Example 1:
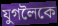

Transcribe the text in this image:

যুগলৈকে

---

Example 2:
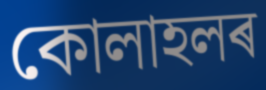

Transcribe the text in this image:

কোলাহলৰ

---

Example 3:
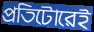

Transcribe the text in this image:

প্ৰতিটোৱেই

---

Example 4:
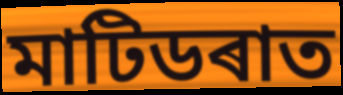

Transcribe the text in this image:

মাটিডৰাত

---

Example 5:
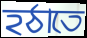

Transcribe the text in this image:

হঠাতে